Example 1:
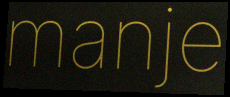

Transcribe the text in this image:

manje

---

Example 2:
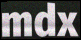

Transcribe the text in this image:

mdx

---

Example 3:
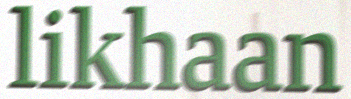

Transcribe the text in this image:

likhaan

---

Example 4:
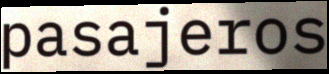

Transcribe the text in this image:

pasajeros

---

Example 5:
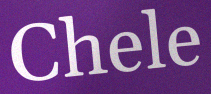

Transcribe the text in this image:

Chele